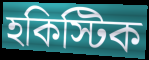
হকিস্টিক